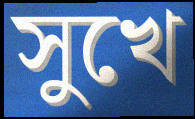
সুখে